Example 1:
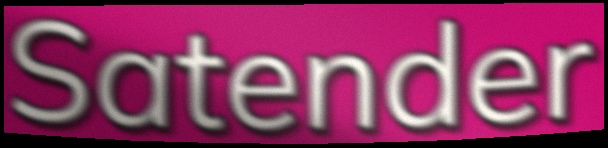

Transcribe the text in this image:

Satender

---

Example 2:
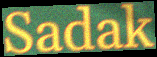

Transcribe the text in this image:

Sadak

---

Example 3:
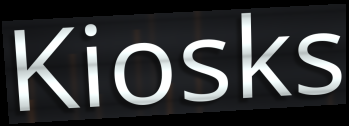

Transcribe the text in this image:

Kiosks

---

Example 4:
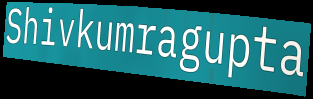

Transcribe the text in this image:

Shivkumragupta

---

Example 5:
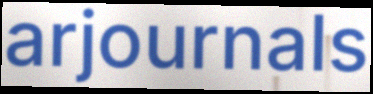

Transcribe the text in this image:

arjournals